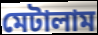
মেটালাম